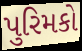
પુરિમકો